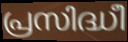
പ്രസിദ്ധീ